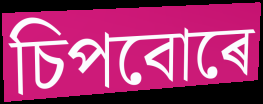
চিপবোৰে